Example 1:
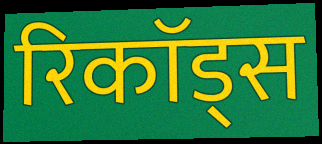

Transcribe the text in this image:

रिकॉड्स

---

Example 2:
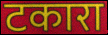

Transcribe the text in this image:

टकारा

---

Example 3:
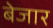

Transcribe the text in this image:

बेजार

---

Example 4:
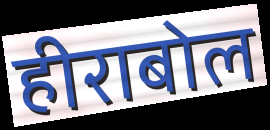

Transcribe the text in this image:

हीराबोल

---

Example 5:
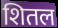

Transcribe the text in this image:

शितल